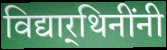
विद्यार्थिनींनी